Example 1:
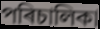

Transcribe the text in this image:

পৰিচালিকা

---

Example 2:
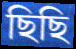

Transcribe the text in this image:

ছিছি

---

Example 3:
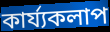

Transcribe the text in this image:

কাৰ্য্যকলাপ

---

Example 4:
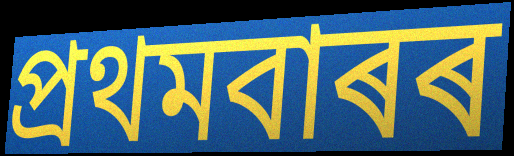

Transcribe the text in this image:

প্ৰথমবাৰৰ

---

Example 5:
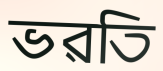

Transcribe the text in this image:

ভৱতি